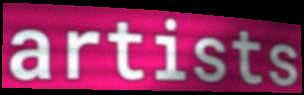
artists